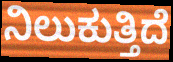
ನಿಲುಕುತ್ತಿದೆ